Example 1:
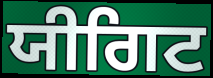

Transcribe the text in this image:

ਯੀਗਿਟ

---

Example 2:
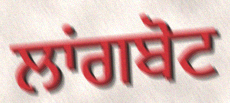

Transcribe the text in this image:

ਲਾਂਗਬੋਟ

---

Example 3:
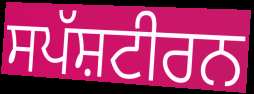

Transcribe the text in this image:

ਸਪੱਸ਼ਟੀਰਨ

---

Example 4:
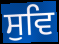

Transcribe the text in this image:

ਸੁਵਿ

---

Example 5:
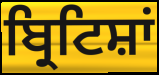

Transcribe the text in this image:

ਬ੍ਰਿਟਿਸ਼ਾਂ